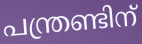
പന്ത്രണ്ടിന്